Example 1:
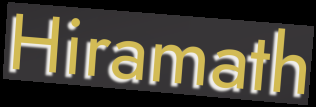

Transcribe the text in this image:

Hiramath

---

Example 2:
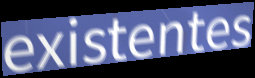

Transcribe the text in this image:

existentes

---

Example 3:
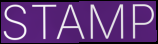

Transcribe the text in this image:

STAMP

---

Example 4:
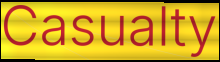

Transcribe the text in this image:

Casualty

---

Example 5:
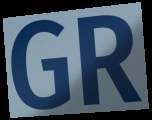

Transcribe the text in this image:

GR